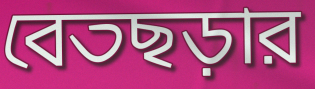
বেতছড়ার